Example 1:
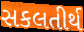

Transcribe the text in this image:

સકલતીર્થ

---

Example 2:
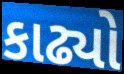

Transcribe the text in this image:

કાઢ્યો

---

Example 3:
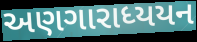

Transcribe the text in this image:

અણગારાધ્યયન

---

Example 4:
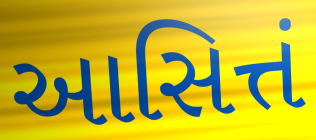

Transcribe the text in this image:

આસિત્તં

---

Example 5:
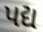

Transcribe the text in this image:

પદ્ય